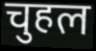
चुहल